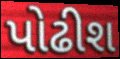
પોઢીશ